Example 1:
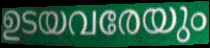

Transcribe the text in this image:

ഉടയവരേയും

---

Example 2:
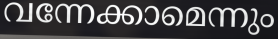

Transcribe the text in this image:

വന്നേക്കാമെന്നും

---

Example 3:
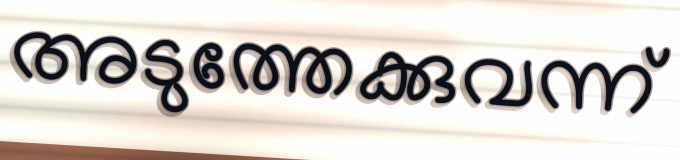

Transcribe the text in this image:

അടുത്തേക്കുവന്ന്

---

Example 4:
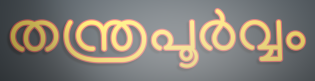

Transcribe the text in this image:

തന്ത്രപൂർവ്വം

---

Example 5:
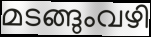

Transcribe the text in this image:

മടങ്ങുംവഴി